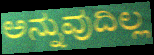
ಅನ್ನುವುದಿಲ್ಲ